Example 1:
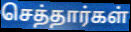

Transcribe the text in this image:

செத்தார்கள்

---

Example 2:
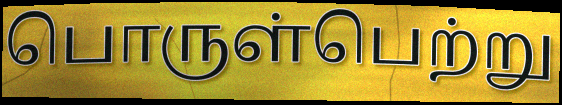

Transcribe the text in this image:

பொருள்பெற்று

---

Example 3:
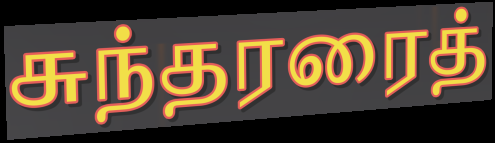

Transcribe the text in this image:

சுந்தரரைத்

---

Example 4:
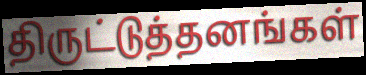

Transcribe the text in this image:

திருட்டுத்தனங்கள்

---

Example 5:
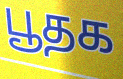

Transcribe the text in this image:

பூதக